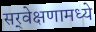
सर्वेक्षणामध्ये